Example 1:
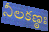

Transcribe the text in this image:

నీలకణ్ఠః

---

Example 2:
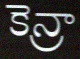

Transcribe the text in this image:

కెన్రా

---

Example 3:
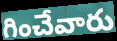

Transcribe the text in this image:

గించేవారు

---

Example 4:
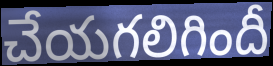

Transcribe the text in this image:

చేయగలిగిందీ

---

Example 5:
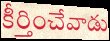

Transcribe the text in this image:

కీర్తించేవాడు